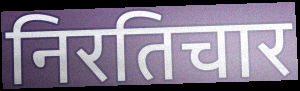
निरतिचार